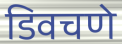
डिवचणे